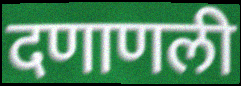
दणाणली